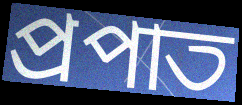
প্রপাত